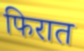
फिरात